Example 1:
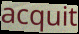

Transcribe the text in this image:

acquit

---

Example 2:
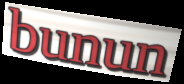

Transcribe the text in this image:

bunun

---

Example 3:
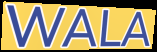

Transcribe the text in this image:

WALA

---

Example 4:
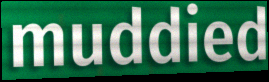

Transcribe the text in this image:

muddied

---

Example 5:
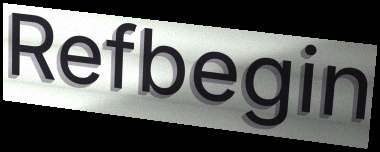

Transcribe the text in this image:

Refbegin